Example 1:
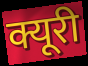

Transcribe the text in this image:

क्यूरी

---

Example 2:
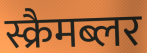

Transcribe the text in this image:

स्क्रैमब्लर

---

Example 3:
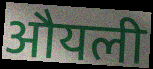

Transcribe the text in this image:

औयली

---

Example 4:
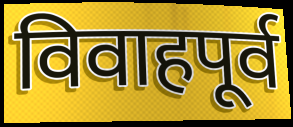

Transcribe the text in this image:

विवाहपूर्व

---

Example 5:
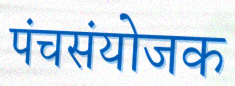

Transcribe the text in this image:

पंचसंयोजक